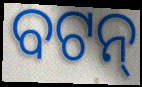
ବଟନ୍